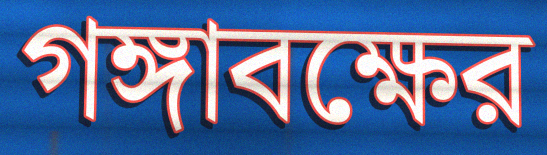
গঙ্গাবক্ষের